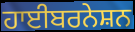
ਹਾਈਬਰਨੇਸ਼ਨ